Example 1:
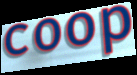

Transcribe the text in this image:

coop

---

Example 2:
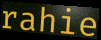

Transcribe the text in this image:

rahie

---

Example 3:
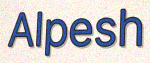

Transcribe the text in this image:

Alpesh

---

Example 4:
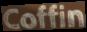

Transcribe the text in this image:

Coffin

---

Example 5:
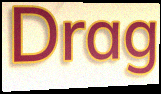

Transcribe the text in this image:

Drag